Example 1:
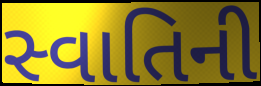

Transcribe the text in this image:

સ્વાતિની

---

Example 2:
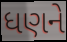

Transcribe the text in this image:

ધણને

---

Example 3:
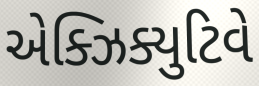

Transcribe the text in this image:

એક્ઝિક્યુટિવે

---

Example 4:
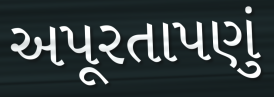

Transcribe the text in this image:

અપૂરતાપણું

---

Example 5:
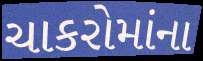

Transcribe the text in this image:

ચાકરોમાંના